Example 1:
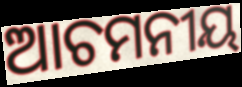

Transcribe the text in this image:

ଆଚମନୀୟ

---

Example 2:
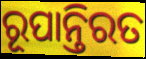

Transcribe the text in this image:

ରୂପାନ୍ତିରତ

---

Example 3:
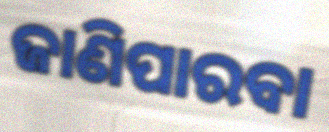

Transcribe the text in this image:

ଜାଣିପାରବା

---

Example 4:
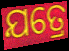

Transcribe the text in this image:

ଯତ୍ରେ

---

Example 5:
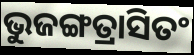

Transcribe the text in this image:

ଭୁଜଙ୍ଗତ୍ରାସିତଂ